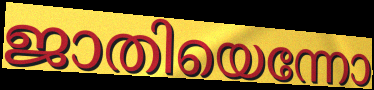
ജാതിയെന്നോ